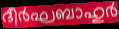
ദീർഘബാഹുർ